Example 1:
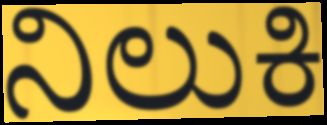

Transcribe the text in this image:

ನಿಲುಕಿ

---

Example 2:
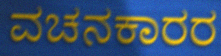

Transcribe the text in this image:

ವಚನಕಾರರ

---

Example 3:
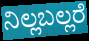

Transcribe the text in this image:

ನಿಲ್ಲಬಲ್ಲರೆ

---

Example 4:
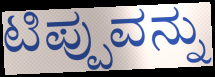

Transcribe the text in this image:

ಟಿಪ್ಪುವನ್ನು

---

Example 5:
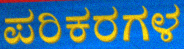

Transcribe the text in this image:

ಪರಿಕರಗಳ